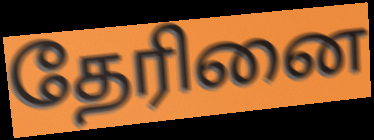
தேரினை